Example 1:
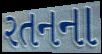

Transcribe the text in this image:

રતનના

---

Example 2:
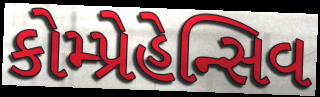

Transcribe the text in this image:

કોમ્પ્રેહેન્સિવ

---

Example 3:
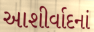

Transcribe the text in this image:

આશીર્વાદનાં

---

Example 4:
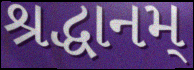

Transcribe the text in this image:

શ્રદ્ધાનમ્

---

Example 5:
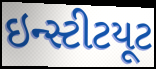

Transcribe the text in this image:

ઇન્સ્ટીટયૂટ